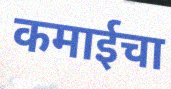
कमाईचा